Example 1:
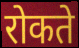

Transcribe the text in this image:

रोकते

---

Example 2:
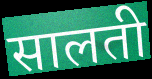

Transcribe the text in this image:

सालती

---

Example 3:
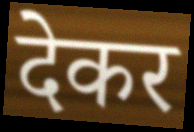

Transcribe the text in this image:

देकर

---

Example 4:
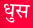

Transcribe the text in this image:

धुस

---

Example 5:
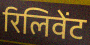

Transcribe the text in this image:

रिलिवेंट